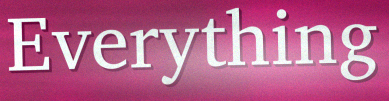
Everything